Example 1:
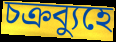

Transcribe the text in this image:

চক্রব্যুহে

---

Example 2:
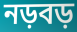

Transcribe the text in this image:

নড়বড়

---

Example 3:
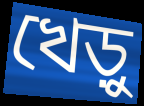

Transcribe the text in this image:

খেড়ু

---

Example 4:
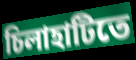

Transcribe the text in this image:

চিলাহাটিতে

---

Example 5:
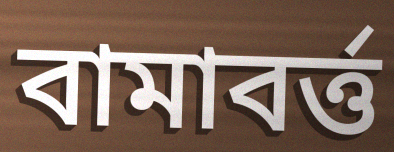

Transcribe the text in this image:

বামাবর্ত্ত